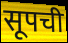
सूपची